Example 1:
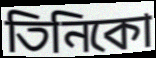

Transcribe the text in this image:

তিনিকো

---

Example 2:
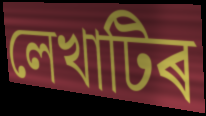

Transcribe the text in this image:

লেখাটিৰ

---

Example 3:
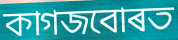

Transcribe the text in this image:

কাগজবোৰত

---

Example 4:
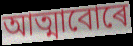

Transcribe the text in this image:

আত্মাবোৰে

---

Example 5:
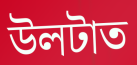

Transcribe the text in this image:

উলটাত